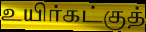
உயிர்கட்குத்